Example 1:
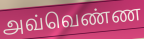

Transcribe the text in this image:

அவ்வெண்ண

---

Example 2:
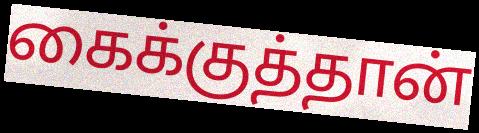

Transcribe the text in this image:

கைக்குத்தான்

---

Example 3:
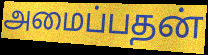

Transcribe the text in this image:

அமைப்பதன்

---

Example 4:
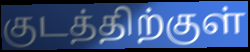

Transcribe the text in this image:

குடத்திற்குள்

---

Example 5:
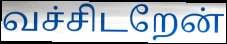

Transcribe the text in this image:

வச்சிடறேன்